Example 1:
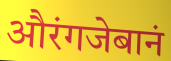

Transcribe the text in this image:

औरंगजेबानं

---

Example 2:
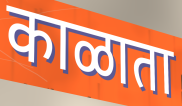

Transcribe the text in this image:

काळाता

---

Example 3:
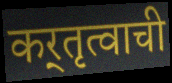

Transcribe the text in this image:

कर्तृत्वाची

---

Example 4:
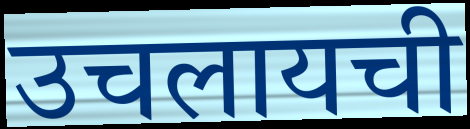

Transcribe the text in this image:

उचलायची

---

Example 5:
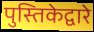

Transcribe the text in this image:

पुस्तिकेद्वारे